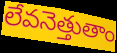
లేవనెత్తుతాం